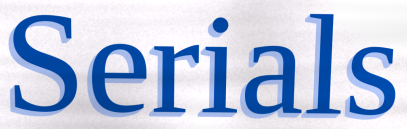
Serials